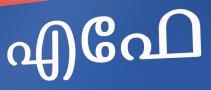
എഫേ